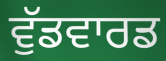
ਵੁੱਡਵਾਰਡ